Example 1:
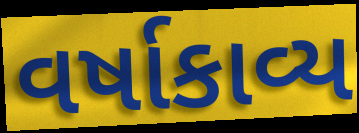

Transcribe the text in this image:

વર્ષાકાવ્ય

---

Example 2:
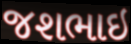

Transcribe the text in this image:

જશભાઇ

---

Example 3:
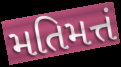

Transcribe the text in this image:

મતિમત્તં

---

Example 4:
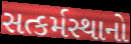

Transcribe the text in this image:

સત્કર્મસ્થાનો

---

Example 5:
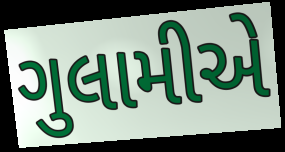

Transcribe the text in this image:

ગુલામીએ